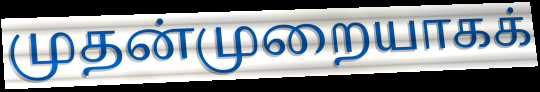
முதன்முறையாகக்